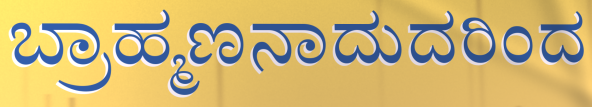
ಬ್ರಾಹ್ಮಣನಾದುದರಿಂದ